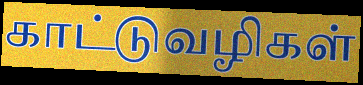
காட்டுவழிகள்